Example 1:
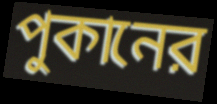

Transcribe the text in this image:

পুকানের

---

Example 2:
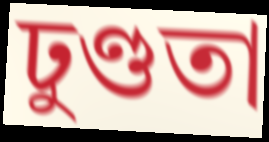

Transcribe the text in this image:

ঢুণ্ডতা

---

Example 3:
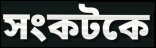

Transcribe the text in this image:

সংকটকে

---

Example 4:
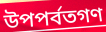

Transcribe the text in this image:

উপপর্বতগণ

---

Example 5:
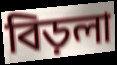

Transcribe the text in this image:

বিড়লা